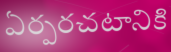
ఏర్పరచటానికి